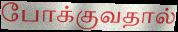
போக்குவதால்